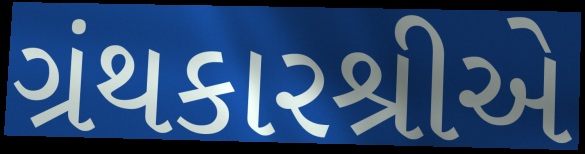
ગ્રંથકારશ્રીએ